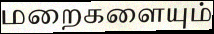
மறைகளையும்